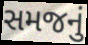
સમજનું